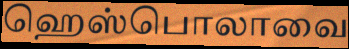
ஹெஸ்பொலாவை